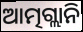
ଆତ୍ମଗ୍ଲାନି